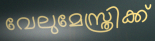
വേലുമേസ്ത്രിക്ക്